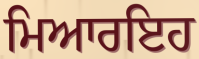
ਮਿਆਰਇਹ